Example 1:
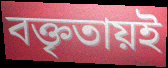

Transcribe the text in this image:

বক্তৃতায়ই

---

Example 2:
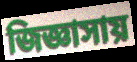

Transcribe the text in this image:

জিজ্ঞাসায়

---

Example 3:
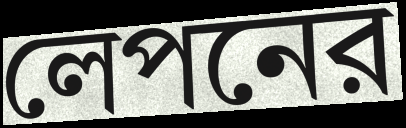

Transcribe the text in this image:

লেপনের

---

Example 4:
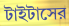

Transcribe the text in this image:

টাইটাসের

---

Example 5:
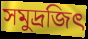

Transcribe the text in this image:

সমুদ্রজিৎ